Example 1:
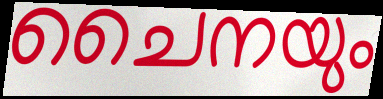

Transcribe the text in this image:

ചൈനയും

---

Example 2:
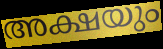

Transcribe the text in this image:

അക്ഷയും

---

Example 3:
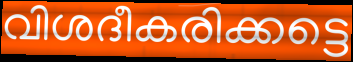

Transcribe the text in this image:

വിശദീകരിക്കട്ടെ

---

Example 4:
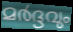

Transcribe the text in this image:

മർദ്ദവും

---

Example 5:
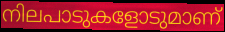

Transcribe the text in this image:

നിലപാടുകളോടുമാണ്